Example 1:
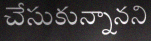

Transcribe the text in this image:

చేసుకున్నానని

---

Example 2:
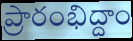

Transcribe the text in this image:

ప్రారంభిద్దాం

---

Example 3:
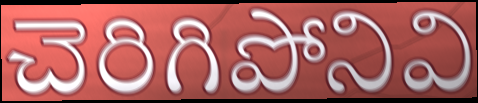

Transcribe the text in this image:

చెరిగిపోనివి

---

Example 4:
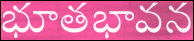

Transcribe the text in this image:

భూతభావన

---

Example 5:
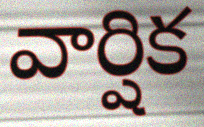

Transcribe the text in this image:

వార్షిక